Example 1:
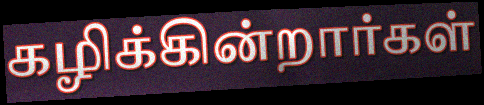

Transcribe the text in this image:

கழிக்கின்றார்கள்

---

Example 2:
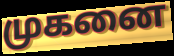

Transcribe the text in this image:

முகனை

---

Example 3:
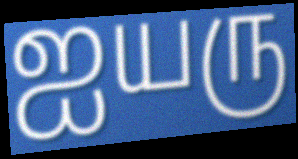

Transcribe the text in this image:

ஐயரு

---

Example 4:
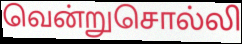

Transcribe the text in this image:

வென்றுசொல்லி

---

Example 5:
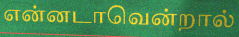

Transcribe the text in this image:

என்னடாவென்றால்